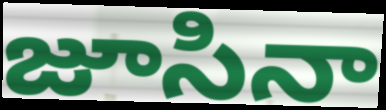
జూసినా